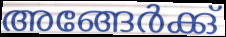
അങ്ങേർക്കു്